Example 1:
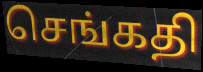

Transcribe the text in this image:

செங்கதி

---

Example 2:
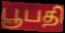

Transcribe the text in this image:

பூபதி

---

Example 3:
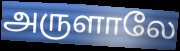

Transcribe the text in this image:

அருளாலே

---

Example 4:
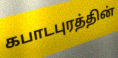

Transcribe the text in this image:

கபாடபுரத்தின்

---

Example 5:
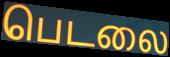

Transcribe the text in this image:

பெடலை